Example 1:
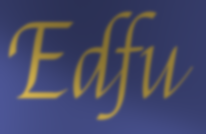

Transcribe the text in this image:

Edfu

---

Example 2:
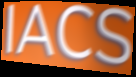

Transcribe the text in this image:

IACS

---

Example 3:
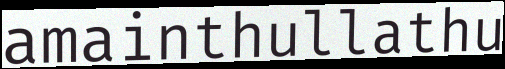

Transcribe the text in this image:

amainthullathu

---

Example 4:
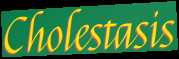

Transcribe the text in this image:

Cholestasis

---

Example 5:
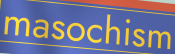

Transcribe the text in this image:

masochism